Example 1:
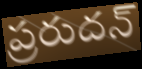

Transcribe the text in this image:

ప్రరుదన్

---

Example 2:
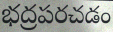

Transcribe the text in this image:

భద్రపరచడం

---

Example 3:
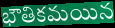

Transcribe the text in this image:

భౌతికమయిన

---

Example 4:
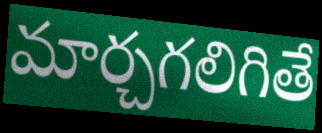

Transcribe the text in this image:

మార్చగలిగితే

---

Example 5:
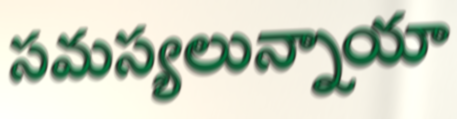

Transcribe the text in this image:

సమస్యలున్నాయా